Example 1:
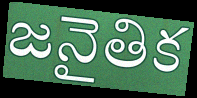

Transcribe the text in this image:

జనైతిక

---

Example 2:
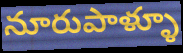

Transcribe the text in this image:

నూరుపాళ్ళూ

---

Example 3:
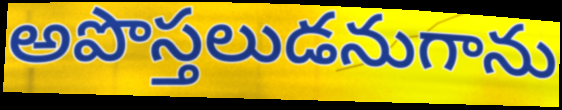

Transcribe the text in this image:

అపొస్తలుడనుగాను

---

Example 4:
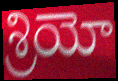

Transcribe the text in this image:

శ్రియో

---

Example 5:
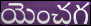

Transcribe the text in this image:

యెంచగ